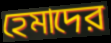
হেমাদের